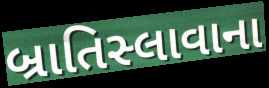
બ્રાતિસ્લાવાના